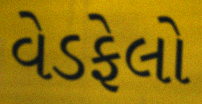
વેડફેલો